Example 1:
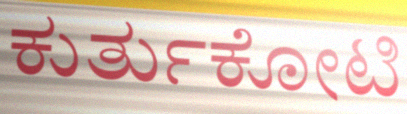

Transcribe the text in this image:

ಕುರ್ತುಕೋಟಿ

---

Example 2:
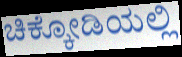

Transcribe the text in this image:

ಚಿಕ್ಕೋಡಿಯಲ್ಲಿ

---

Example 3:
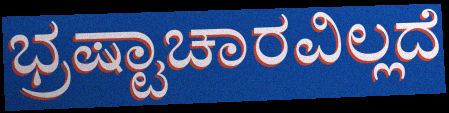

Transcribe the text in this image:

ಭ್ರಷ್ಟಾಚಾರವಿಲ್ಲದೆ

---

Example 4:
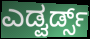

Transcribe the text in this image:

ಎಡ್ವರ್ಡ್ಸ್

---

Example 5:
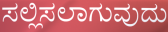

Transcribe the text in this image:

ಸಲ್ಲಿಸಲಾಗುವುದು